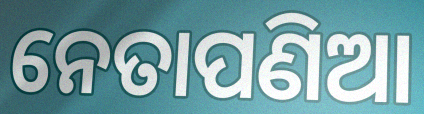
ନେତାପଣିଆ